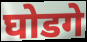
घोडगे